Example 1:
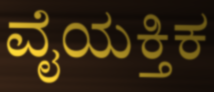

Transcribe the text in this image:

ವೈಯಕ್ತಿಕ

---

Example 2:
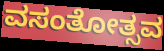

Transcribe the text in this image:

ವಸಂತೋತ್ಸವ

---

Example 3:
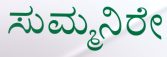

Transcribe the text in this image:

ಸುಮ್ಮನಿರೇ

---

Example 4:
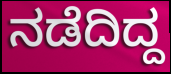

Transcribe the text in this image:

ನಡೆದಿದ್ದ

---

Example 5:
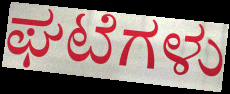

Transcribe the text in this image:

ಘಟೆಗಳು